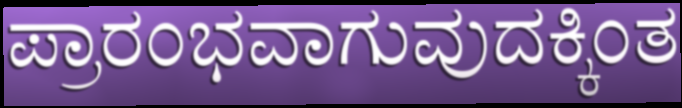
ಪ್ರಾರಂಭವಾಗುವುದಕ್ಕಿಂತ